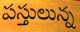
పస్తులున్న